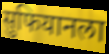
सुफियानला